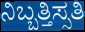
ನಿಬ್ಬತ್ತಿಸ್ಸತಿ